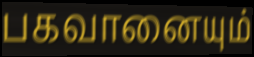
பகவானையும்